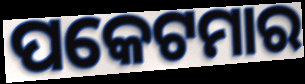
ପକେଟମାର